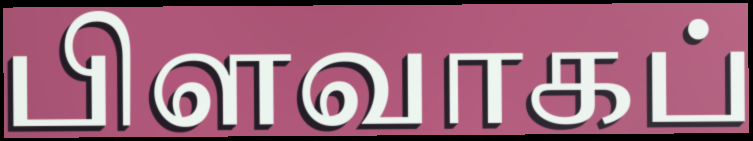
பிளவாகப்